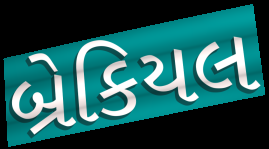
બ્રેકિયલ